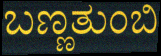
ಬಣ್ಣತುಂಬಿ